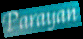
Parayan